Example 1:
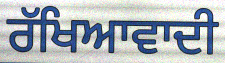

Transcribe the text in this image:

ਰੱਖਿਆਵਾਦੀ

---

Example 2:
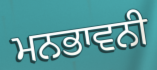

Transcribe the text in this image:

ਮਨਭਾਵਨੀ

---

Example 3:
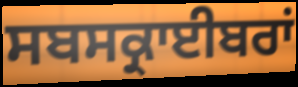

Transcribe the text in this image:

ਸਬਸਕ੍ਰਾਈਬਰਾਂ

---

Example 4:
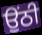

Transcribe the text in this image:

ਉਂਠੀ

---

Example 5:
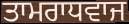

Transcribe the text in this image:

ਤਾਮਰਾਧਵਾਜ